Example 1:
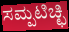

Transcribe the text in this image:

ಸಮ್ಪಟಿಚ್ಛಿ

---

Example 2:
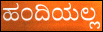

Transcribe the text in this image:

ಹಂದಿಯಲ್ಲ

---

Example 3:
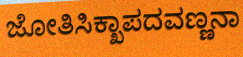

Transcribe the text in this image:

ಜೋತಿಸಿಕ್ಖಾಪದವಣ್ಣನಾ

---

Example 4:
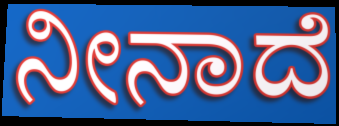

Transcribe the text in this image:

ನೀನಾದೆ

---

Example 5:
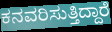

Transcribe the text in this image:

ಕನವರಿಸುತ್ತಿದ್ದಾರೆ